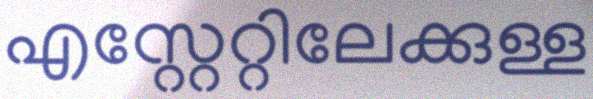
എസ്റ്റേറ്റിലേക്കുള്ള